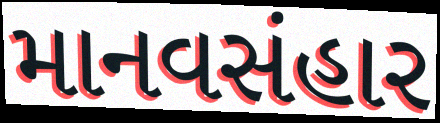
માનવસંહાર